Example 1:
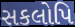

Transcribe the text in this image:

સકલોપિ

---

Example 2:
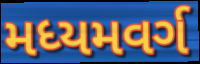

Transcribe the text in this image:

મધ્યમવર્ગ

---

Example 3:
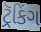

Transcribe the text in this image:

ટ્રૅકિંગ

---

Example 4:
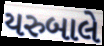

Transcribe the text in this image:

યરુબાલે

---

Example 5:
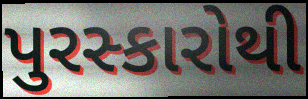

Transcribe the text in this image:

પુરસ્કારોથી